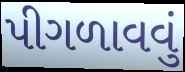
પીગળાવવું